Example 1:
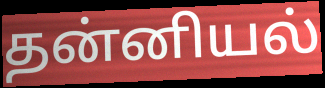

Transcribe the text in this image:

தன்னியல்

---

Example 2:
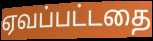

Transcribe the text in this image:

ஏவப்பட்டதை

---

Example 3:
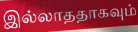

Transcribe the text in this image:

இல்லாததாகவும்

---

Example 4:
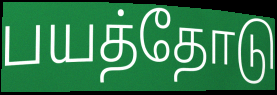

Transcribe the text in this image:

பயத்தோடு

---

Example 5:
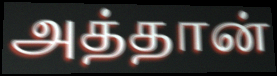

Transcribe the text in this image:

அத்தான்